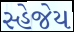
સ્હેજેય